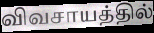
விவசாயத்தில்